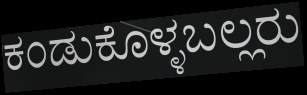
ಕಂಡುಕೊಳ್ಳಬಲ್ಲರು